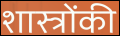
शास्त्रोंकी